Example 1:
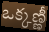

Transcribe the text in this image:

ఒక్కణ్ణీ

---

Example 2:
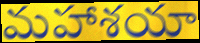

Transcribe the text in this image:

మహాశయా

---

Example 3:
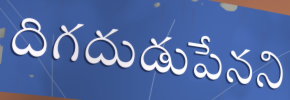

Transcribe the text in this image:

దిగదుడుపేనని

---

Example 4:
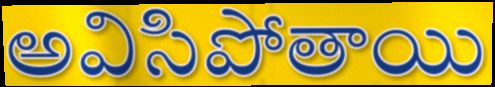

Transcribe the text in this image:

అవిసిపోతాయి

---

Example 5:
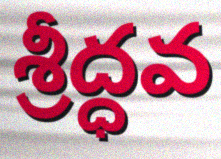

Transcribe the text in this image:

శ్రీద్ధవ